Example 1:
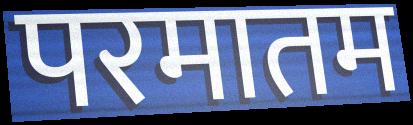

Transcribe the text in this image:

परमातम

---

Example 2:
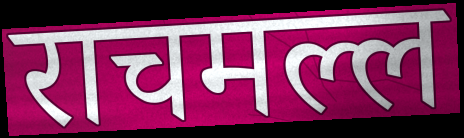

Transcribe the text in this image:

राचमल्ल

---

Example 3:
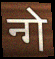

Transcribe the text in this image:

न्गे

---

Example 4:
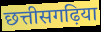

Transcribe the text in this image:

छत्तीसगढ़िया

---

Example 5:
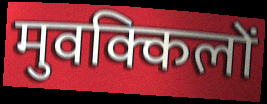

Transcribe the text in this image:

मुवक्किलों